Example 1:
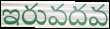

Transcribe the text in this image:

ఇరువదవ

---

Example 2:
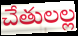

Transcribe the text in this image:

చేతులల్ల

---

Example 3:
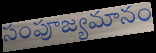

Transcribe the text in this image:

సంపూజ్యమానం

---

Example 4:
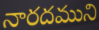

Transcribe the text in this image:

నారదముని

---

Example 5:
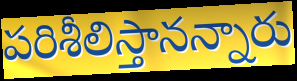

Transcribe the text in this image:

పరిశీలిస్తానన్నారు